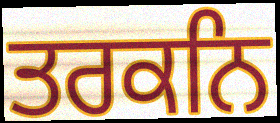
ਤਰਕਨਿ